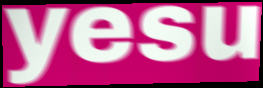
yesu